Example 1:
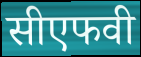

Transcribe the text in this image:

सीएफवी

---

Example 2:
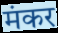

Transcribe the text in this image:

मंकर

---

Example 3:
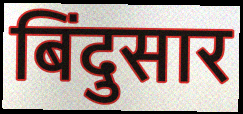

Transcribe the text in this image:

बिंदुसार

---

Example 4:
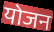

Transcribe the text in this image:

योजन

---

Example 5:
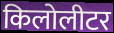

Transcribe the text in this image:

किलोलीटर